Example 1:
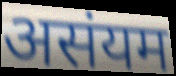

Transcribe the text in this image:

असंयम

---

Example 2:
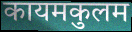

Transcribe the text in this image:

कायमकुलम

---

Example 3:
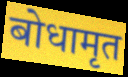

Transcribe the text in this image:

बोधामृत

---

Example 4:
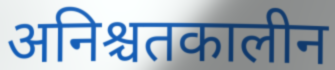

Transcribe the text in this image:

अनिश्चतकालीन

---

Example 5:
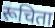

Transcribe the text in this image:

रूचिता